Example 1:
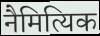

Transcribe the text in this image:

नैमित्यिक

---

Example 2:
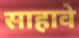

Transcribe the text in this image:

साहावे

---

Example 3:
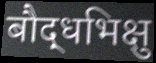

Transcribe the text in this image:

बौद्धभिक्षु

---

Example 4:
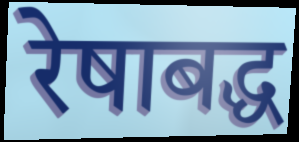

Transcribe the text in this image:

रेषाबद्ध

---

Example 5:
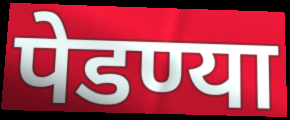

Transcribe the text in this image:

पेडण्या